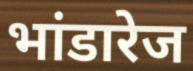
भांडारेज